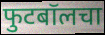
फुटबॉलचा